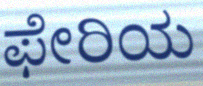
ಫೇರಿಯ